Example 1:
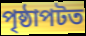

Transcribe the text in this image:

পৃষ্ঠাপটত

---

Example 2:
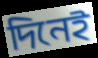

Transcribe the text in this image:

দিনেই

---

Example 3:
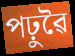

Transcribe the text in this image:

পঢ়ুৱৈ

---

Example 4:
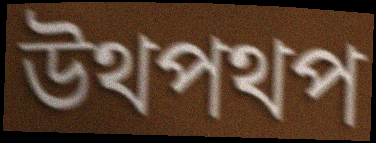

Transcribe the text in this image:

উথপথপ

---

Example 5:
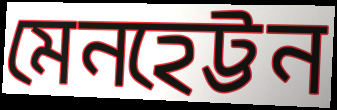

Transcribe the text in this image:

মেনহেট্টন